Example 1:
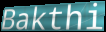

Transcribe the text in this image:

Bakthi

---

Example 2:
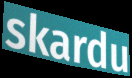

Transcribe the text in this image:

skardu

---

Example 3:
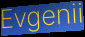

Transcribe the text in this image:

Evgenii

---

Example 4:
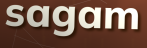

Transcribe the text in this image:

sagam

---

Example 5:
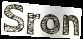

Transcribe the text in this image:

Sron